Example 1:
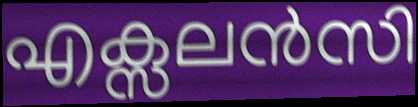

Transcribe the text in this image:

എക്സലൻസി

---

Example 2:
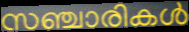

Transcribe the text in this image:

സഞ്ചാരികൾ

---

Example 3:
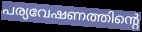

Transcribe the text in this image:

പര്യവേഷണത്തിന്റെ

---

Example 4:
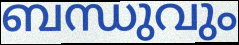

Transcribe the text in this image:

ബന്ധുവും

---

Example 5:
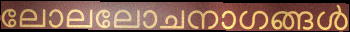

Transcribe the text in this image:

ലോലലോചനാഗങ്ങൾ